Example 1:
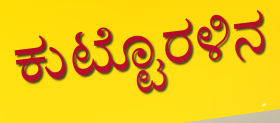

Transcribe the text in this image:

ಕುಟ್ಟೊರಳಿನ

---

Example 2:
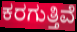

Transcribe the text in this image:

ಕರಗುತ್ತಿವೆ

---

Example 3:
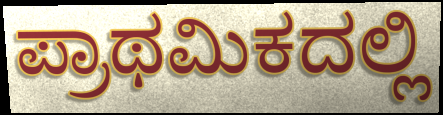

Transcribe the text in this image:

ಪ್ರಾಥಮಿಕದಲ್ಲಿ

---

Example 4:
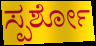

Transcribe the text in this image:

ಸ್ಪರ್ಶೋ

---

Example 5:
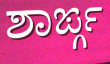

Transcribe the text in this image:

ಶಾರ್ಙ್ಗ